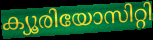
ക്യൂരിയോസിറ്റി